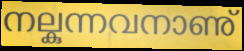
നല്കുന്നവനാണു്